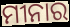
ମୀନାର